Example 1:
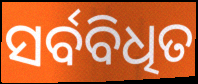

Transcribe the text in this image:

ସର୍ବବିଧିତ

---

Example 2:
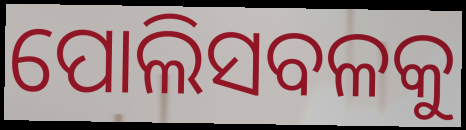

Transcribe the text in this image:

ପୋଲିସବଳକୁ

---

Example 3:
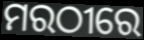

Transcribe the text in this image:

ମରଠୀରେ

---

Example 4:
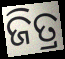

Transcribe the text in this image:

ଜିତ୍ର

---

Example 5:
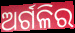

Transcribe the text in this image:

ଅର୍ଗଳିର